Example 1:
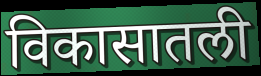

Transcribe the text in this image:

विकासातली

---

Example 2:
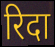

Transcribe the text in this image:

रिदा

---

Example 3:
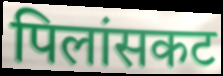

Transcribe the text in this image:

पिलांसकट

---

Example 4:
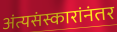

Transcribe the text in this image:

अंत्यसंस्कारांनंतर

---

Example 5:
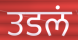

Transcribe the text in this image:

उडलं